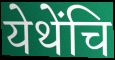
येथेंचि